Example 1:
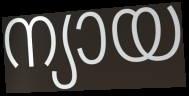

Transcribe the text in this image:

ന്യായ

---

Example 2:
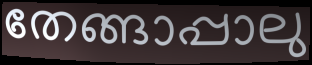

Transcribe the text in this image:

തേങ്ങാപ്പാലു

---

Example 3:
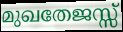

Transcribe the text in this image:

മുഖതേജസ്സ്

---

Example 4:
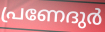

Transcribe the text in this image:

പ്രണേദുർ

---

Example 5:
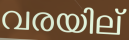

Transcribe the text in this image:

വരയില്